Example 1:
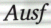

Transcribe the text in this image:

Ausf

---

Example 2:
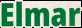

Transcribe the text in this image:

Elmar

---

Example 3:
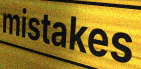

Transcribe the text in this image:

mistakes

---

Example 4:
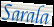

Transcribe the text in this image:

Sarala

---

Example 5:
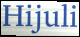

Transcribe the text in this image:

Hijuli